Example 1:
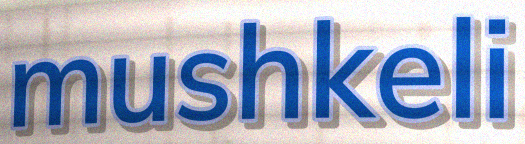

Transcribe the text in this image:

mushkeli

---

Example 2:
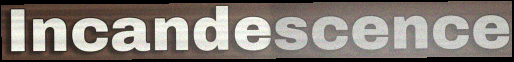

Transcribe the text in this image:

Incandescence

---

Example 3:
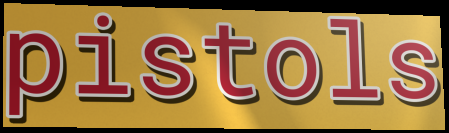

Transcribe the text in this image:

pistols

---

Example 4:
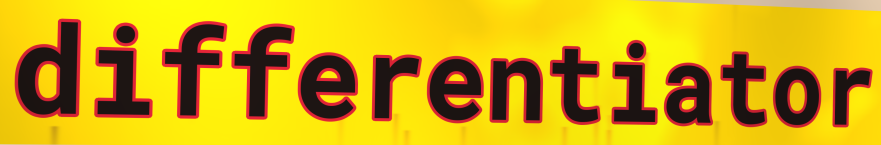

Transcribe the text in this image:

differentiator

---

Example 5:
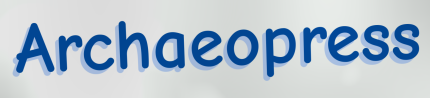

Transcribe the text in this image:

Archaeopress